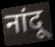
नांदू